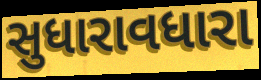
સુધારાવધારા